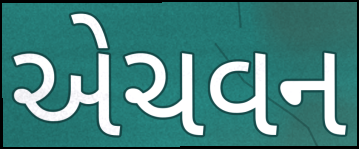
એચવન